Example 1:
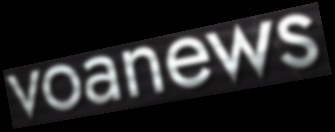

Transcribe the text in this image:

voanews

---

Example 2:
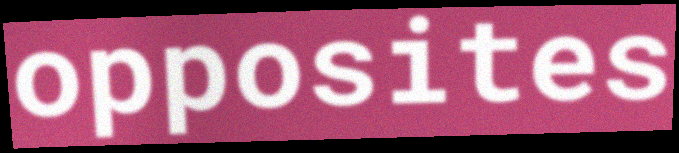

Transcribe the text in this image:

opposites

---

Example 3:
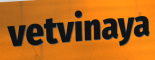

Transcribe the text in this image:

vetvinaya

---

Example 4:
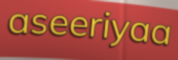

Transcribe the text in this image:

aseeriyaa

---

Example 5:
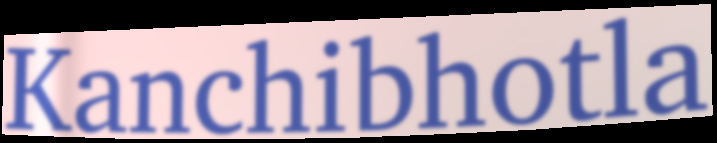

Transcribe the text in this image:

Kanchibhotla